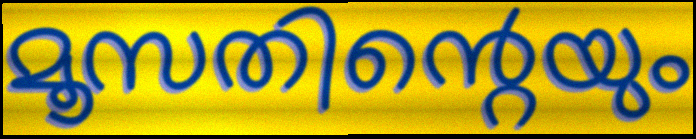
മൂസതിന്റെയും